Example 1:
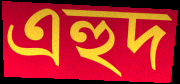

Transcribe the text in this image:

এহুদ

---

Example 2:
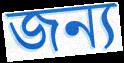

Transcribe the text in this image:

জন্য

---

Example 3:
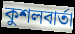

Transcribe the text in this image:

কুশলবার্তা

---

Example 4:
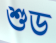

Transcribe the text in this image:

শুড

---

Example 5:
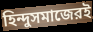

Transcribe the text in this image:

হিন্দুসমাজেরই